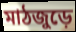
মাঠজুড়ে